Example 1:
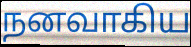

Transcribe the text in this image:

நனவாகிய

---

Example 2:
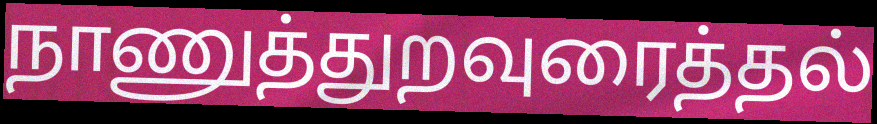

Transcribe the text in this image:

நாணுத்துறவுரைத்தல்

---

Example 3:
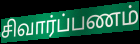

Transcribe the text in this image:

சிவார்ப்பணம்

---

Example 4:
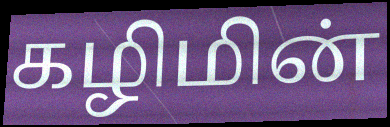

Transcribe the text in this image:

கழிமின்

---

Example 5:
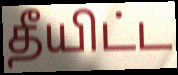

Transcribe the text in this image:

தீயிட்ட